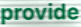
provide